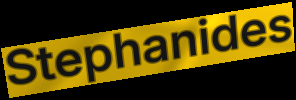
Stephanides